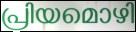
പ്രിയമൊഴി